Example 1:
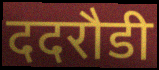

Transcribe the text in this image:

ददरौडी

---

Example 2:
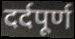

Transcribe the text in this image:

दर्दपूर्ण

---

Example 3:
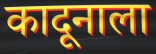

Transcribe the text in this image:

कादूनाला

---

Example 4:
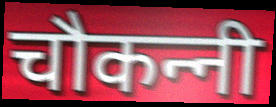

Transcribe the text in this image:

चौकन्नी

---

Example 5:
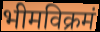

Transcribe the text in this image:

भीमविक्रमं